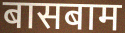
बासबाम